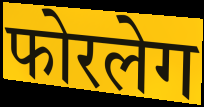
फोरलेग